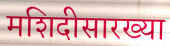
मशिदीसारख्या